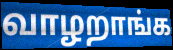
வாழறாங்க